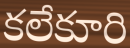
కలేకూరి